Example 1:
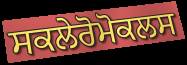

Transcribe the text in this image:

ਸਕਲੇਰੋਮੋਕਲਸ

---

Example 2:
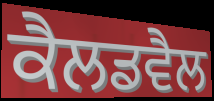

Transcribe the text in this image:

ਕੈਲਡਵੈਲ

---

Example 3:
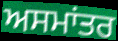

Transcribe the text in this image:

ਅਸਮਾਂਤਰ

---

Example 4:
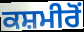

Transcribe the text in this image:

ਕਸ਼ਮੀਰੋਂ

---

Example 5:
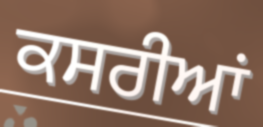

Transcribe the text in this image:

ਕਸਰੀਆਂ